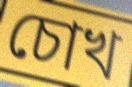
চোখ